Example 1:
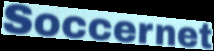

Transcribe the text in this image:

Soccernet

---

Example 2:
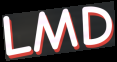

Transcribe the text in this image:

LMD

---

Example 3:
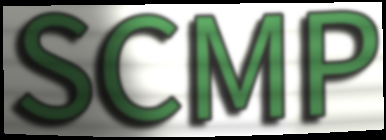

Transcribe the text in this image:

SCMP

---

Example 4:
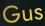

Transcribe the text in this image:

Gus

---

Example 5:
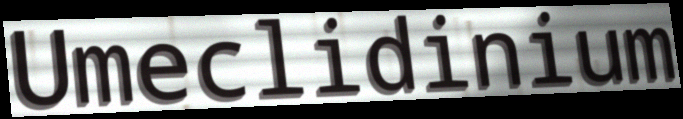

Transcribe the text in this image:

Umeclidinium